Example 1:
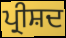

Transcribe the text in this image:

ਪ੍ਰ੍ਰੀਸ਼ਦ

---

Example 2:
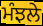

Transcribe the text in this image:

ਮੰਝਲੇ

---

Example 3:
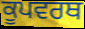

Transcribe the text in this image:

ਕੂਪਵਰਥ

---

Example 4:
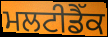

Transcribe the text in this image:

ਮਲਟੀਡੈੱਕ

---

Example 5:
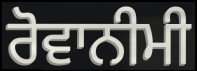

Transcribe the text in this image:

ਰੋਵਾਨੀਮੀ